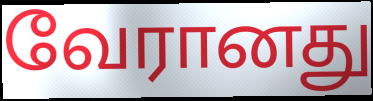
வேரானது